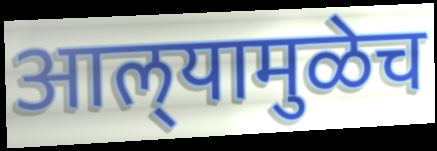
आल्यामुळेच